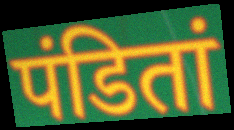
पंडितां